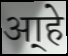
आ्हे